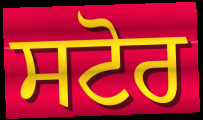
ਸਟੋਰ